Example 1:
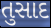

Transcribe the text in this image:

તુસાદ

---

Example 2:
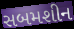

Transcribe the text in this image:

સબમશીન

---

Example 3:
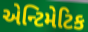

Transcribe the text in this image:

એન્ટિમેટિક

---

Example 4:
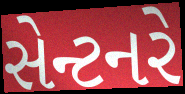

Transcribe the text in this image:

સેન્ટનરે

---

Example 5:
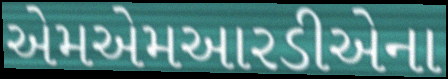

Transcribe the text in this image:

એમએમઆરડીએના